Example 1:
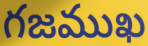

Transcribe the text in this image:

గజముఖ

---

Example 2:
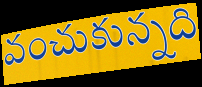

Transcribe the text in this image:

వంచుకున్నది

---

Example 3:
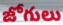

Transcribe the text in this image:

జోగులు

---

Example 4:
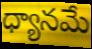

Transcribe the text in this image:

ధ్యానమే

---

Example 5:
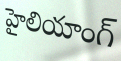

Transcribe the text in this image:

హైలియాంగ్